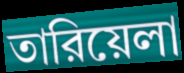
তারিয়েলা